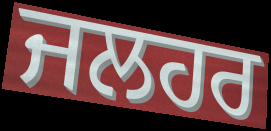
ਜਲਹਰ